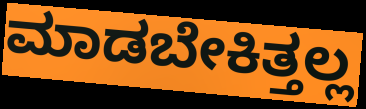
ಮಾಡಬೇಕಿತ್ತಲ್ಲ